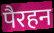
पैरहन